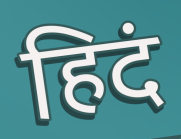
हिदं